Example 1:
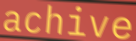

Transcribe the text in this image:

achive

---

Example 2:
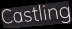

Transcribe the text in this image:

Castling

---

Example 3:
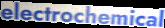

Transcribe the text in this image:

electrochemical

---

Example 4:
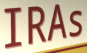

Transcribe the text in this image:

IRAs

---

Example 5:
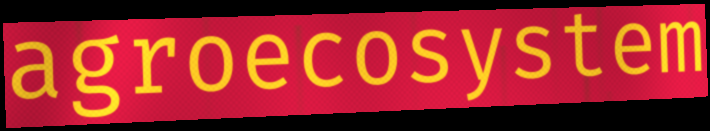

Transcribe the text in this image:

agroecosystem